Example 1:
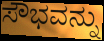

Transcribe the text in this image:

ಸೌಭವನ್ನು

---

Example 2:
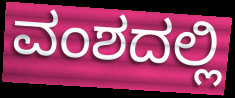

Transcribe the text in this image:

ವಂಶದಲ್ಲಿ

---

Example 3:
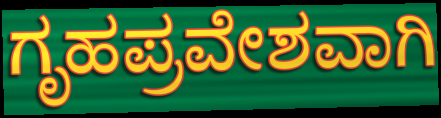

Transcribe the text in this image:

ಗೃಹಪ್ರವೇಶವಾಗಿ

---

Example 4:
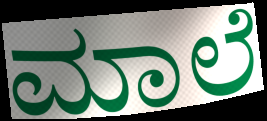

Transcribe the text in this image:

ಮಾಲೆ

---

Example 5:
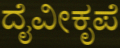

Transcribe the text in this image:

ದೈವೀಕೃಪೆ